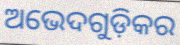
ଅଭେଦଗୁଡ଼ିକର